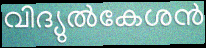
വിദ്യുൽകേശൻ